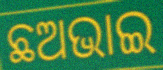
ଛଅଭାଇ